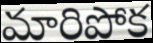
మారిపోక